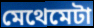
মেথেমেটা